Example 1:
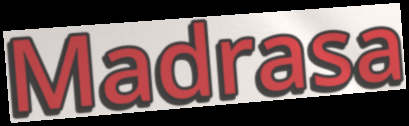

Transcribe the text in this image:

Madrasa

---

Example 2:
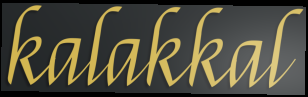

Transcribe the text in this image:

kalakkal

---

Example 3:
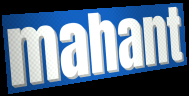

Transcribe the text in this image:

mahant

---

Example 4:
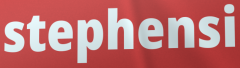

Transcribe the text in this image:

stephensi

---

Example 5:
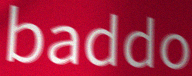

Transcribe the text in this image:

baddo